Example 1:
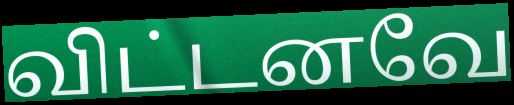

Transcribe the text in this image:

விட்டனவே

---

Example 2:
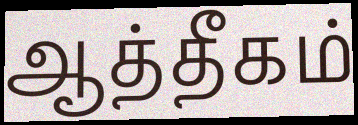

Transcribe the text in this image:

ஆத்தீகம்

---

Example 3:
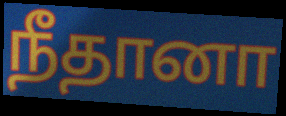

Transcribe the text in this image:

நீதானா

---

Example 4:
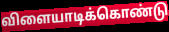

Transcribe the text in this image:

விளையாடிக்கொண்டு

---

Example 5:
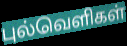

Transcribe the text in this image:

புல்வெளிகள்